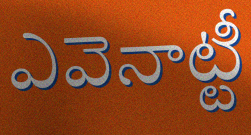
ఎవెనాట్టీ